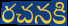
రచనకి